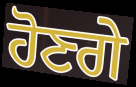
ਹੋਣਗੇ